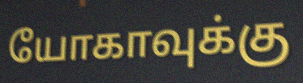
யோகாவுக்கு